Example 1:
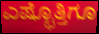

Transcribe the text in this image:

ಎಷ್ಟೊತ್ತಿಗೂ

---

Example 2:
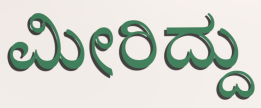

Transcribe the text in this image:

ಮೀರಿದ್ದು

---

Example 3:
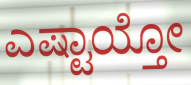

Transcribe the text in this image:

ಎಷ್ಟಾಯ್ತೋ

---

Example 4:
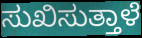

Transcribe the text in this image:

ಸುಖಿಸುತ್ತಾಳೆ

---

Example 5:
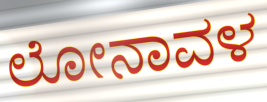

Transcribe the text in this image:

ಲೋನಾವಳ